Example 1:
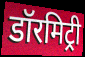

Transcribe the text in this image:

डॉरमिट्री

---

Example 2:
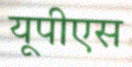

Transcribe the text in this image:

यूपीएस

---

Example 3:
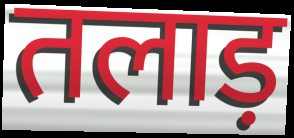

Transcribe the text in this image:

तलाड़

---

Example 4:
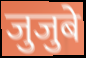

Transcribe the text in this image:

जुजुबे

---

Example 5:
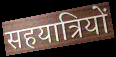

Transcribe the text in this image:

सहयात्रियों